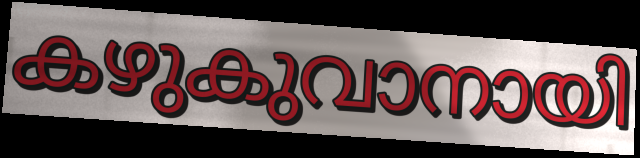
കഴുകുവാനായി